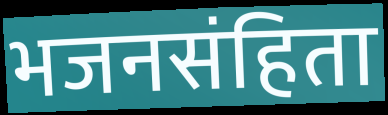
भजनसंहिता